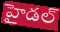
హైడల్